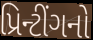
પ્રિન્ટીંગનો